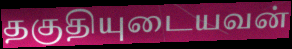
தகுதியுடையவன்